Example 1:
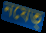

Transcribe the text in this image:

নযেত্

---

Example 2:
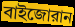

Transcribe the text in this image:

বাইজোরান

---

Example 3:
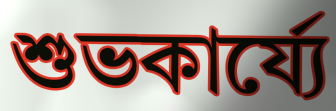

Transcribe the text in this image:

শুভকার্য্যে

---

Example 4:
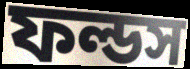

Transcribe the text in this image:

ফল্ডস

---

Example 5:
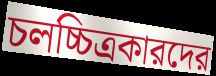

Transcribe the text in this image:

চলচ্চিত্রকারদের